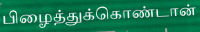
பிழைத்துக்கொண்டான்